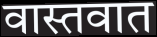
वास्तवात